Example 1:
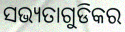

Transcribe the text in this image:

ସଭ୍ୟତାଗୁଡିକର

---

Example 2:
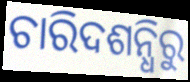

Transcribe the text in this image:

ଚାରିଦଶନ୍ଧିରୁ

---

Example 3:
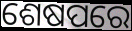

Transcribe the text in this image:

ଶେଷପରେ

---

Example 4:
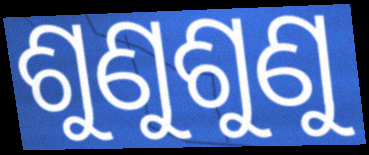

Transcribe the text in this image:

ଶୁଣୁଶୁଣୁ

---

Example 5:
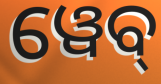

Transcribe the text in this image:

ୱେବ୍